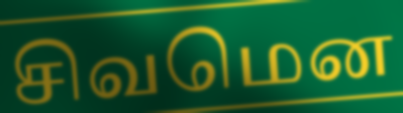
சிவமென